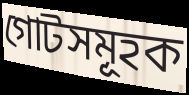
গোটসমূহক